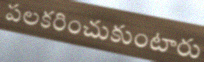
పలకరించుకుంటారు